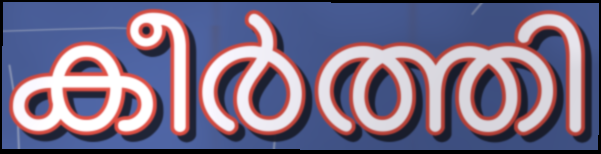
കീർത്തി